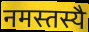
नमस्तस्यै